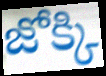
జోక్కి